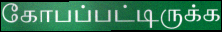
கோபப்பட்டிருக்க